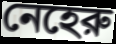
নেহেরু